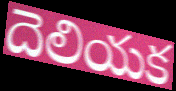
దెలియక